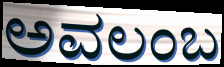
ಅವಲಂಬ